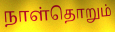
நாள்தொறும்